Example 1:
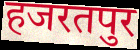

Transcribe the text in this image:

हजरतपुर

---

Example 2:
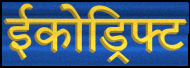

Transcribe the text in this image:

ईकोड्रिफ्ट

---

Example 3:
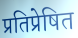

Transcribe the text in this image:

प्रतिप्रेषित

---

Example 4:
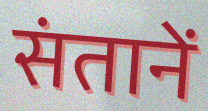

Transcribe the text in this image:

संतानें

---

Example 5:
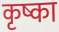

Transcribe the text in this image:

कृष्का